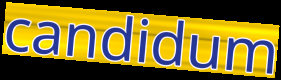
candidum